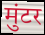
मुंटर